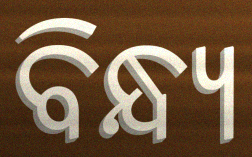
ବିନ୍ଧ୍ୟ